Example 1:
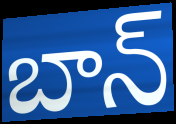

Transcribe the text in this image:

బాన్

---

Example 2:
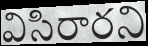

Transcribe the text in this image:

విసిరారని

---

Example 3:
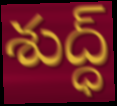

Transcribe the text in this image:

శుద్ధ్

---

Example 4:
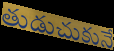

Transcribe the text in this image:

తుడుచుకునే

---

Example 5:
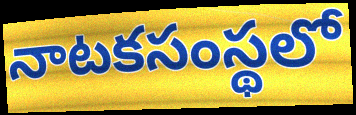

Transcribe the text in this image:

నాటకసంస్థలో